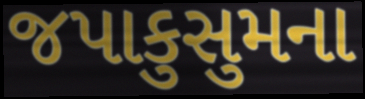
જપાકુસુમના